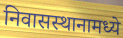
निवासस्थानामध्ये